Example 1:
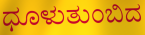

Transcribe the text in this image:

ಧೂಳುತುಂಬಿದ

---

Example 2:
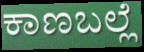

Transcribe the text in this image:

ಕಾಣಬಲ್ಲೆ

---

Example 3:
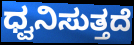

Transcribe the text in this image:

ಧ್ವನಿಸುತ್ತದೆ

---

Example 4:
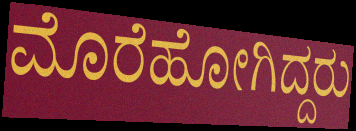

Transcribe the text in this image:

ಮೊರೆಹೋಗಿದ್ದರು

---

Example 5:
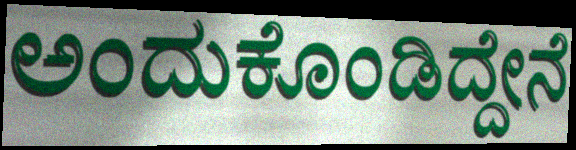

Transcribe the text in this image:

ಅಂದುಕೊಂಡಿದ್ದೇನೆ